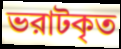
ভরাটকৃত